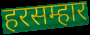
हरसम्हार